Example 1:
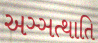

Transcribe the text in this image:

અઞ્ઞત્થાતિ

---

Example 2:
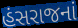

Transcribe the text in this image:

હંસરાજનાં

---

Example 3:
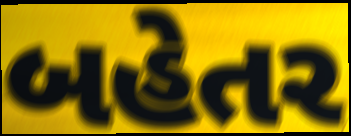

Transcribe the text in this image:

બહેતર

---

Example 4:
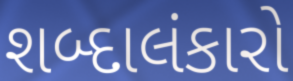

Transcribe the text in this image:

શબ્દાલંકારો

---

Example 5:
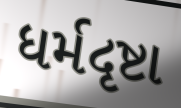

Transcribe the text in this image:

ધર્મદૃષ્ટા